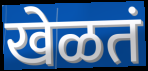
खेळतं